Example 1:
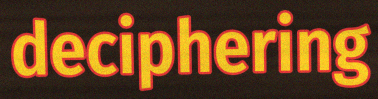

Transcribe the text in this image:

deciphering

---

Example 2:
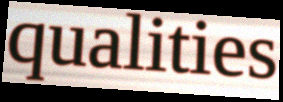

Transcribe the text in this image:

qualities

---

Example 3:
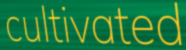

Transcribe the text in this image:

cultivated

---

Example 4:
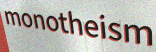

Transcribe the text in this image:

monotheism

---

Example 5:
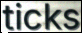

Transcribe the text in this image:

ticks